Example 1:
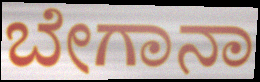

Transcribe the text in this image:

ಬೇಗಾನಾ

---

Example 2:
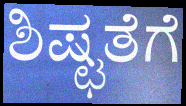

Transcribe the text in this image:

ಶಿಷ್ಟತೆಗೆ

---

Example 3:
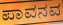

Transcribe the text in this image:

ಪಾವನವ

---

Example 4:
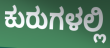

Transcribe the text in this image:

ಕುರುಗಳಲ್ಲಿ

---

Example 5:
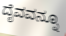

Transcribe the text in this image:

ದೈವವನ್ನೂ